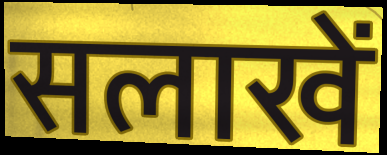
सलाखें